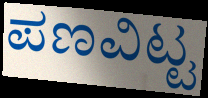
ಪಣವಿಟ್ಟ